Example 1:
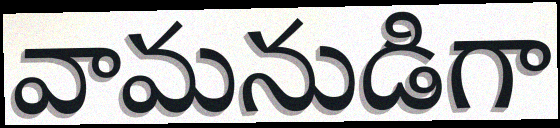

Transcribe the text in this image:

వామనుడిగా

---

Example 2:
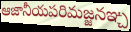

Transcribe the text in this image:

ఆజానీయపరిమజ్జనఞ్చ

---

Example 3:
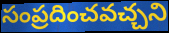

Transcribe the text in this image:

సంప్రదించవచ్చని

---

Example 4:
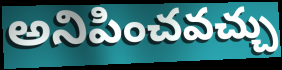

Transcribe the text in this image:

అనిపించవచ్చు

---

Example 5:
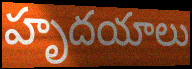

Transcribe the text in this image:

హృదయాలు